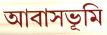
আবাসভূমি